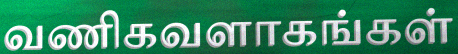
வணிகவளாகங்கள்